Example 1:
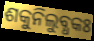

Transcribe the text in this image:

ଶକୁନିଲୁବ୍ଧକଃ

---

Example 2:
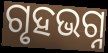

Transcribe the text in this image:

ଗୃହଭଗ୍ନ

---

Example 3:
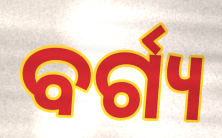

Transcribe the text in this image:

ବର୍ଗ୍ୟ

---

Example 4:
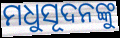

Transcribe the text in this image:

ମଧୁସୂଦନଙ୍କୁ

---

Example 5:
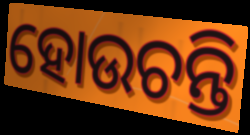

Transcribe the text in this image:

ହୋଉଚନ୍ତି